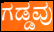
ಗಡ್ಡವು